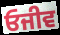
ਓਜੀਵ